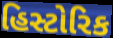
હિસ્ટોરિક